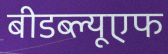
बीडब्ल्यूएफ